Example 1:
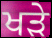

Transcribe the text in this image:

ਖਡ਼ੇ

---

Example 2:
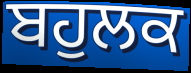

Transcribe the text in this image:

ਬਹੁਲਕ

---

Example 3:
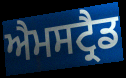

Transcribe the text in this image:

ਐਮਸਟ੍ਰੈਡ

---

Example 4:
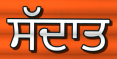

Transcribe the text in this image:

ਸੱਦਾਤ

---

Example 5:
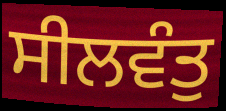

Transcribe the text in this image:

ਸੀਲਵੰਤੁ